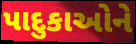
પાદુકાઓને